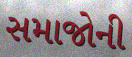
સમાજોની